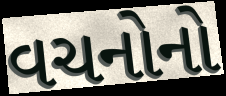
વચનોનો